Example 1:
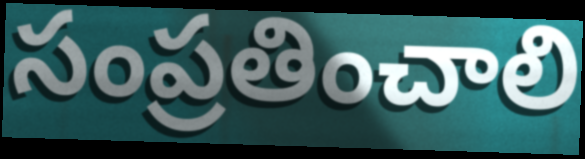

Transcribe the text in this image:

సంప్రతించాలి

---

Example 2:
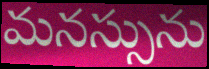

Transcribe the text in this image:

మనస్సును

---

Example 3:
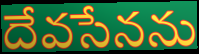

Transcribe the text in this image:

దేవసేనను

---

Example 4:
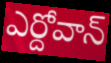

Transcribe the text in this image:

ఎర్దోవాన్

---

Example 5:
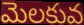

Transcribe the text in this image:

మెలకువ